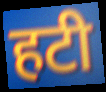
हटी